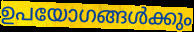
ഉപയോഗങ്ങൾക്കും